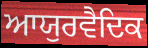
ਆਯੁਰਵੈਦਿਕ